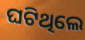
ଘଟିଥିଲେ